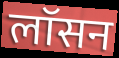
लॉसन